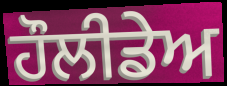
ਹੌਲੀਡੇਅ